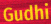
Gudhi